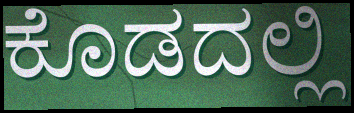
ಕೊಡದಲ್ಲಿ